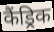
कैंड्रिक